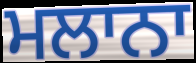
ਮਲਾਨਾ